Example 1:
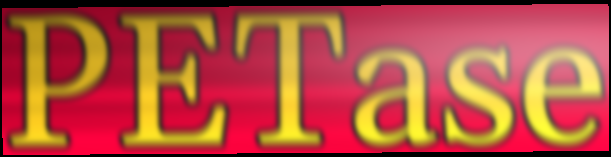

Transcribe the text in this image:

PETase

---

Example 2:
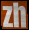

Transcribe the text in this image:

zh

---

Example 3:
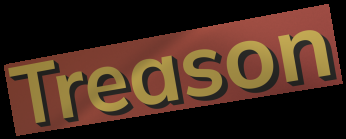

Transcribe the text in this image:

Treason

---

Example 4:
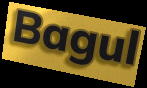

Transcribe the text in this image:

Bagul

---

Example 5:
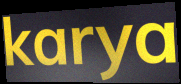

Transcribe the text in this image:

karya